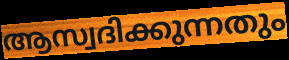
ആസ്വദിക്കുന്നതും